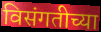
विसंगतीच्या